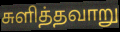
சுளித்தவாறு